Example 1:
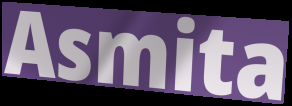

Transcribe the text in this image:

Asmita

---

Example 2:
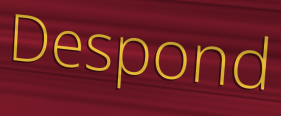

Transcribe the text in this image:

Despond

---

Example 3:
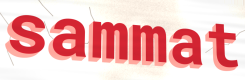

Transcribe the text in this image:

sammat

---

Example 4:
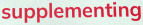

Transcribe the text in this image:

supplementing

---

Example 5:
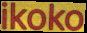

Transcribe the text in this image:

ikoko